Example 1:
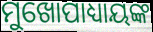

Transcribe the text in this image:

ମୁଖୋପାଧ୍ୟାୟଙ୍କ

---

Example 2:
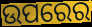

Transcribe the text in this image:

ଉପରେର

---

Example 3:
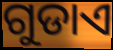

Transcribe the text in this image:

ଗୁଡାଏ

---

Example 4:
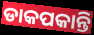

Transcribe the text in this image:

ଡାକପକାନ୍ତି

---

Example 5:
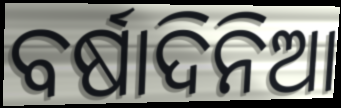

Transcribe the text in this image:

ବର୍ଷାଦିନିଆ